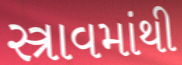
સ્ત્રાવમાંથી